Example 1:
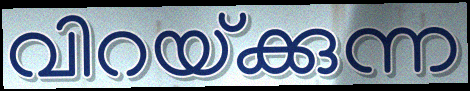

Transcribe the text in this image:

വിറയ്‌ക്കുന്ന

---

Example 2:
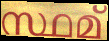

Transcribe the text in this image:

സ്ഥമ്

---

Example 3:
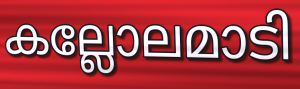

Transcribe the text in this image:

കല്ലോലമാടി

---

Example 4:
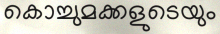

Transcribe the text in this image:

കൊച്ചുമക്കളുടെയും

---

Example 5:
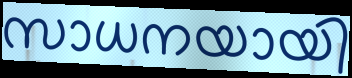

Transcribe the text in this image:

സാധനയായി